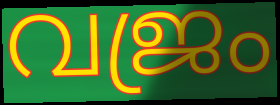
വജ്രം